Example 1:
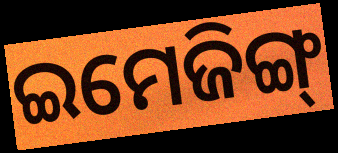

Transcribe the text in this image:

ଇମେଜିଙ୍ଗ୍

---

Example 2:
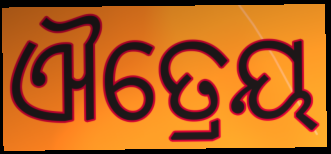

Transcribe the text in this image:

ଐତ୍ରେୟ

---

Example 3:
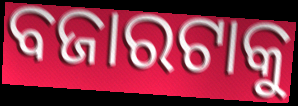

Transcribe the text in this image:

ବଜାରଟାକୁ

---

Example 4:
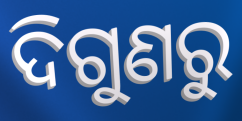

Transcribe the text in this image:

ଦିଗୁଣରୁ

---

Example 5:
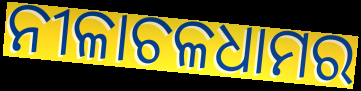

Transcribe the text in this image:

ନୀଳାଚଳଧାମର